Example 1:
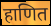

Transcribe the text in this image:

हाणित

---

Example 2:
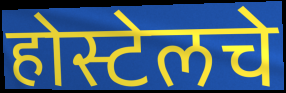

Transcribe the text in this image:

होस्टेलचे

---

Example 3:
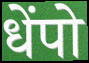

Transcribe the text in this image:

धेंपो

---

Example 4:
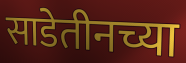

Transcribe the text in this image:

साडेतीनच्या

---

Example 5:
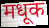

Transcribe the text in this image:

मधूक